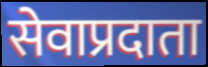
सेवाप्रदाता